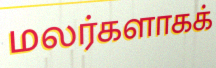
மலர்களாகக்